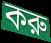
করু